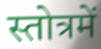
स्तोत्रमें